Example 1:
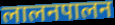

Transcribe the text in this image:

लालनपालन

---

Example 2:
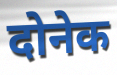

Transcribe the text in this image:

दोनेक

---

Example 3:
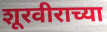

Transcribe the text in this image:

शूरवीराच्या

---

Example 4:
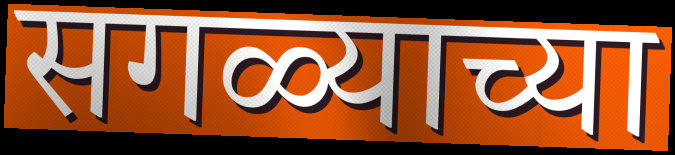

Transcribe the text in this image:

सगळ्याच्या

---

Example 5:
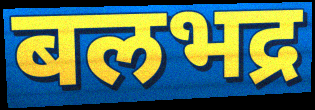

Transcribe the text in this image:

बलभद्र